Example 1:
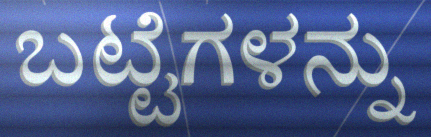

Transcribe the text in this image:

ಬಟ್ಟೆಗಳನ್ನು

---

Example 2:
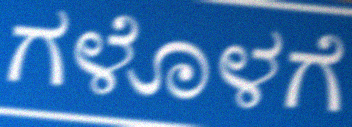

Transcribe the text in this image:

ಗಳೊಳಗೆ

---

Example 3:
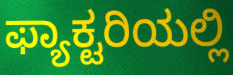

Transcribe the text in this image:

ಫ್ಯಾಕ್ಟರಿಯಲ್ಲಿ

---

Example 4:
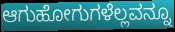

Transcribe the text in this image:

ಆಗುಹೋಗುಗಳೆಲ್ಲವನ್ನೂ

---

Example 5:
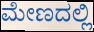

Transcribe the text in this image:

ಮೇಣದಲ್ಲಿ